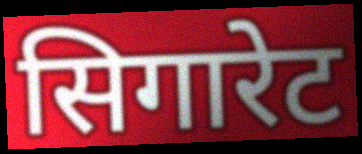
सिगारेट